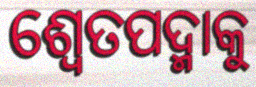
ଶ୍ୱେତପଦ୍ମାକୁ